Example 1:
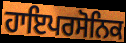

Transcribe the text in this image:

ਹਾਇਪਰਸੋਨਿਕ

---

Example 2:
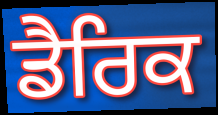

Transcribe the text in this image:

ਡੈਰਿਕ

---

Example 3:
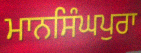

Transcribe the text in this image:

ਮਾਨਸਿੰਘਪੁਰਾ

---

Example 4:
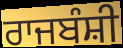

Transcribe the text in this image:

ਰਾਜਬੰਸ਼ੀ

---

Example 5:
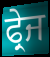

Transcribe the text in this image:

ਫ੍ਰੇਜ